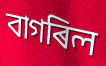
বাগৰিল